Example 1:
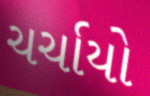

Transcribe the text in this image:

ચર્ચાયો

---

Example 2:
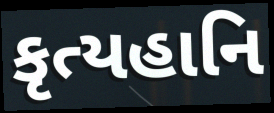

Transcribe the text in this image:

કૃત્યહાનિ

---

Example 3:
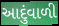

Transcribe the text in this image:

આદુંવાળી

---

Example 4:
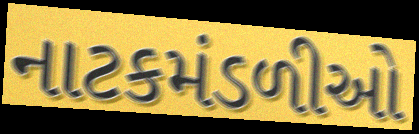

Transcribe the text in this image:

નાટકમંડળીઓ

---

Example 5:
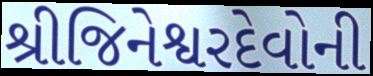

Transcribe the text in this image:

શ્રીજિનેશ્વરદેવોની